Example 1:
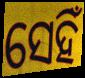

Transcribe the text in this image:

ସେହିଁ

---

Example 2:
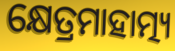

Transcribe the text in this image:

କ୍ଷେତ୍ରମାହାତ୍ମ୍ୟ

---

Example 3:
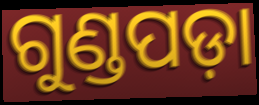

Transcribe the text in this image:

ଗୁଣ୍ଡପଡ଼ା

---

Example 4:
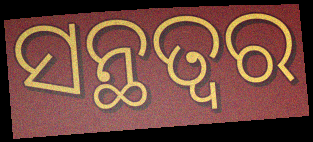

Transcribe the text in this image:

ସନ୍ଥତ୍ବର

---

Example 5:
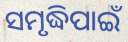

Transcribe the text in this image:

ସମୃଦ୍ଧିପାଇଁ